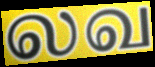
லவ